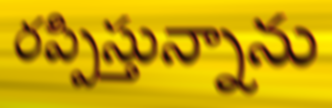
రప్పిస్తున్నాను